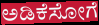
ಅಡಿಕೆಸೋಗೆ